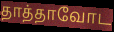
தாத்தாவோட